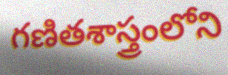
గణితశాస్త్రంలోని